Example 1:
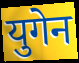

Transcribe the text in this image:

युगेन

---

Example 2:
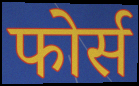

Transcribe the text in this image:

फोर्स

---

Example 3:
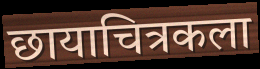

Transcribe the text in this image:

छायाचित्रकला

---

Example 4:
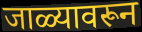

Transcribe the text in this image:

जाळ्यावरून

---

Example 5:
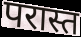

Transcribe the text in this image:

परास्त